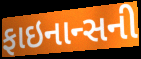
ફાઇનાન્સની